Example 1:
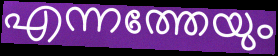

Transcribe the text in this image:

എന്നത്തേയും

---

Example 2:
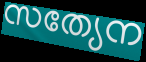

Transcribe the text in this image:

സത്യേന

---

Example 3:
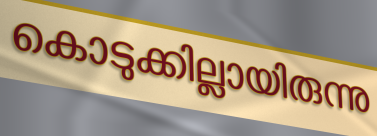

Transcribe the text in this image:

കൊടുക്കില്ലായിരുന്നു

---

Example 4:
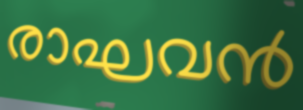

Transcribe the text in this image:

രാഘവൻ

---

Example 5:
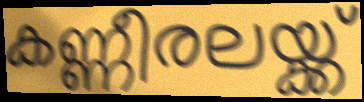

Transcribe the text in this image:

കണ്ണീരലയ്ക്ക്